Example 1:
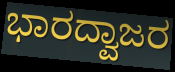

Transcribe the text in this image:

ಭಾರದ್ವಾಜರ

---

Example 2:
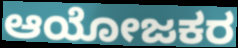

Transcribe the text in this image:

ಆಯೋಜಕರ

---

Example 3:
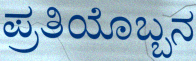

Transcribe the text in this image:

ಪ್ರತಿಯೊಬ್ಬನ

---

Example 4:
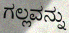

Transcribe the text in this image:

ಗಲ್ಲವನ್ನು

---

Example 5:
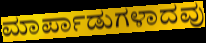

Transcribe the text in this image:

ಮಾರ್ಪಾಡುಗಳಾದವು